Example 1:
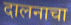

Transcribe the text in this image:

दालनाचा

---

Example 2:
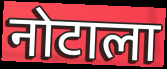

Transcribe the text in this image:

नोटाला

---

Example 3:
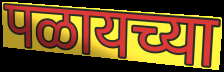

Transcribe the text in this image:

पळायच्या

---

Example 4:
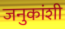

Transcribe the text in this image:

जनुकांशी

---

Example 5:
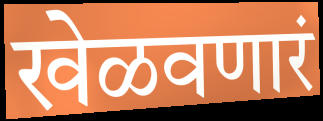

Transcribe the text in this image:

खेळवणारं